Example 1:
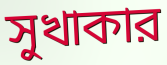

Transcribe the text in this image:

সুখাকার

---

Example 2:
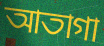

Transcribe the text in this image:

আতাগা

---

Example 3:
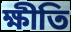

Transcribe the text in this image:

ক্ষীতি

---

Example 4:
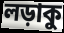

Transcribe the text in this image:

লড়াকু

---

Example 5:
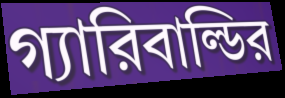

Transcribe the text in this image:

গ্যারিবাল্ডির